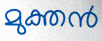
മുക്തൻ